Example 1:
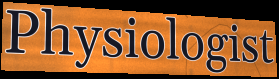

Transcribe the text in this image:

Physiologist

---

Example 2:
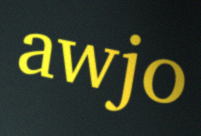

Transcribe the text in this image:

awjo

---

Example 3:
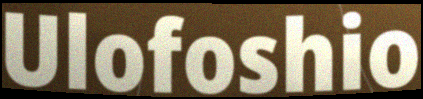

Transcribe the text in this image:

Ulofoshio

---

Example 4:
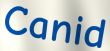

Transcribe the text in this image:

Canid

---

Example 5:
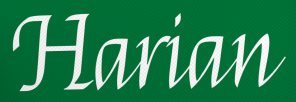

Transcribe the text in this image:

Harian